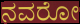
ನವರೋ